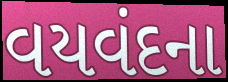
વયવંદના